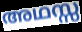
അഥസ്സ